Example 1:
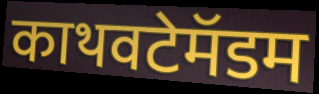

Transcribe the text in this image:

काथवटेमॅडम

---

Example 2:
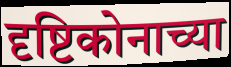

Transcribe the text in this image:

दृष्टिकोनाच्या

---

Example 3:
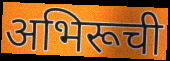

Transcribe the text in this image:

अभिरूची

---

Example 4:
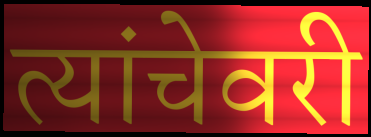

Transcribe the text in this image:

त्यांचेवरी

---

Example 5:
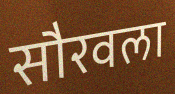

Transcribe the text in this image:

सौरवला